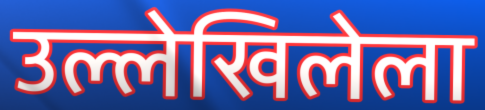
उल्लेखिलेला